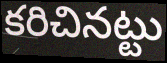
కరిచినట్టు